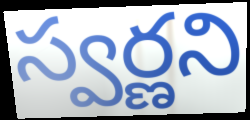
స్వర్ణని